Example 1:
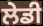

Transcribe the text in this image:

ਲੇਡੀ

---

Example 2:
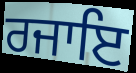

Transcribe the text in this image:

ਰਜਾਇ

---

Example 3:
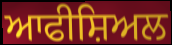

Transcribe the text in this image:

ਆਫੀਸ਼ਿਅਲ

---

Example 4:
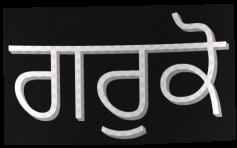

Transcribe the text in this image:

ਗਰੁਕੋ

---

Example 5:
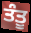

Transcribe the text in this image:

ਤੰਤੂ